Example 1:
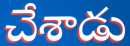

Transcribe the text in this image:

చేశాడు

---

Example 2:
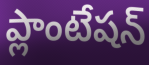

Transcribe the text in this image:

ప్లాంటేషన్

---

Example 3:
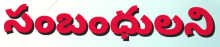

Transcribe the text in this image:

సంబంధులని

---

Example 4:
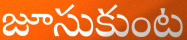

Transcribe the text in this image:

జూసుకుంట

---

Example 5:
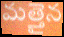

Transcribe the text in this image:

మత్తైన